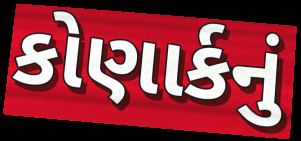
કોણાર્કનું